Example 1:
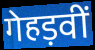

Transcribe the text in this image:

गेहड़वीं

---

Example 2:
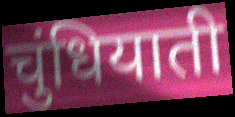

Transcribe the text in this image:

चुंधियाती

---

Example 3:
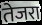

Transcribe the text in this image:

तेजरा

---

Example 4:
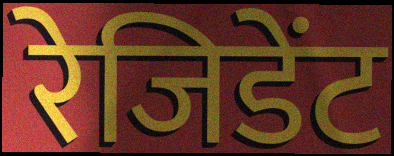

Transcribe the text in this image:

रेजिडेंट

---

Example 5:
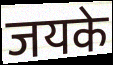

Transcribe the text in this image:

जयके